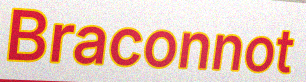
Braconnot